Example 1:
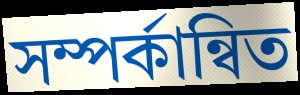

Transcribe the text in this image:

সম্পর্কান্বিত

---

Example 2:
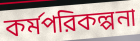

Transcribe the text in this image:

কর্মপরিকল্পনা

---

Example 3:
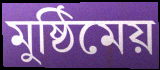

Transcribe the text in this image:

মুষ্ঠিমেয়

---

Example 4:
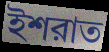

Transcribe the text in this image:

ইশরাত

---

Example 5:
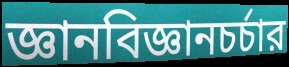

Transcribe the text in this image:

জ্ঞানবিজ্ঞানচর্চার